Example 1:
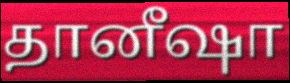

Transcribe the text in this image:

தானீஷா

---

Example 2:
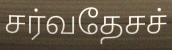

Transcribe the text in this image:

சர்வதேசச்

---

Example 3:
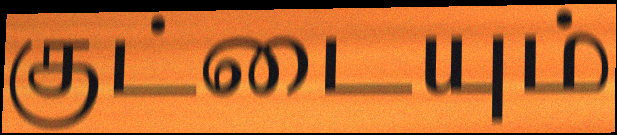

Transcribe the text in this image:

குட்டையும்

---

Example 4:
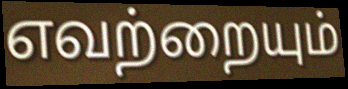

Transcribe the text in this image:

எவற்றையும்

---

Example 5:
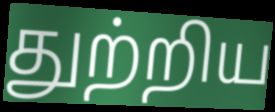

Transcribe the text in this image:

துற்றிய